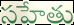
సహేతు